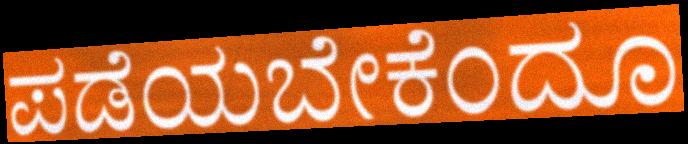
ಪಡೆಯಬೇಕೆಂದೂ